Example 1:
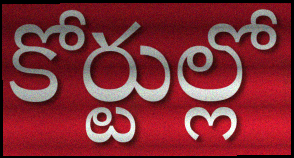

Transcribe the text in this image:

కోర్టుల్లో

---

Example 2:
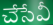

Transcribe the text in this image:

చేసేవీ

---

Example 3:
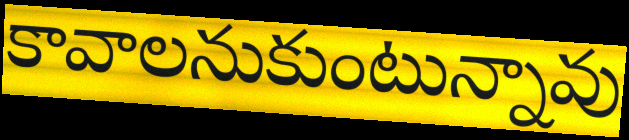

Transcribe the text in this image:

కావాలనుకుంటున్నావు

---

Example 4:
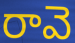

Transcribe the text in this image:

రావె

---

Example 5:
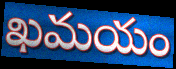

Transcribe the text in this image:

ఖమయం